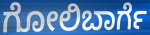
ಗೋಲಿಬಾರ್ಗೆ